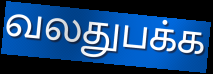
வலதுபக்க